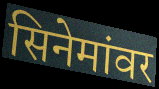
सिनेमांवर